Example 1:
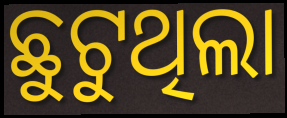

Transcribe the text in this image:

ଛୁଟୁଥିଲା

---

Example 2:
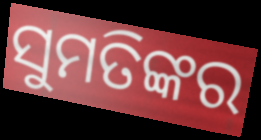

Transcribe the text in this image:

ସୁମତିଙ୍କର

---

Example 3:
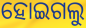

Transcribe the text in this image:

ହୋଇଗଲୁ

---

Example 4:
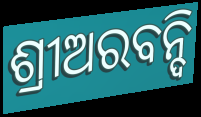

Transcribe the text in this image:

ଶ୍ରୀଅରବନ୍ଦି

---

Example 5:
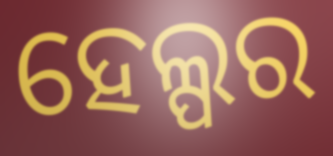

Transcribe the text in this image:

ହେଲ୍ପର